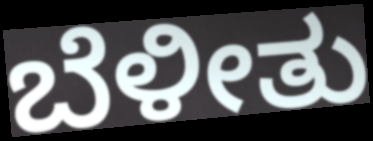
ಬೆಳೀತು